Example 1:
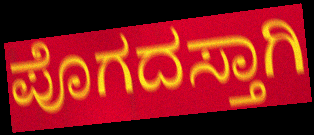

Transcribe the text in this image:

ಪೊಗದಸ್ತಾಗಿ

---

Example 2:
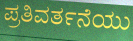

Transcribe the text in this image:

ಪ್ರತಿವರ್ತನೆಯು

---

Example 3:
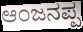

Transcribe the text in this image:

ಆಂಜನಪ್ಪ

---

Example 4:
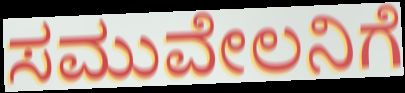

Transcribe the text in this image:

ಸಮುವೇಲನಿಗೆ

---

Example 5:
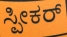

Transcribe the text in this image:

ಸ್ಪೀಕರ್